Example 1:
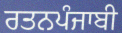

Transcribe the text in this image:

ਰਤਨਪੰਜਾਬੀ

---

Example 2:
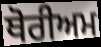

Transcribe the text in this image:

ਥੋਰੀਅਮ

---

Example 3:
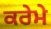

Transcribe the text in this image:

ਕਰੇਮੇ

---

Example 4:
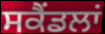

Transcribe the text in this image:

ਸਕੈਂਡਲਾਂ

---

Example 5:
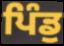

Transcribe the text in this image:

ਪਿੰਡੁ